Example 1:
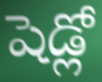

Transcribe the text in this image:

షెడ్లో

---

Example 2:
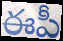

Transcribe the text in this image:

ఈపీ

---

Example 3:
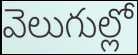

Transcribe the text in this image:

వెలుగుల్లో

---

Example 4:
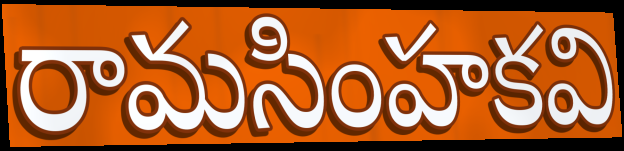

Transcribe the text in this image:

రామసింహకవి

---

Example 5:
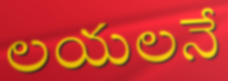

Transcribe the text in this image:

లయలనే